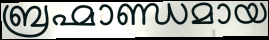
ബ്രഹ്മാണ്ഡമായ